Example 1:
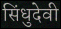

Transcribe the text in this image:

सिंधुदेवी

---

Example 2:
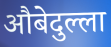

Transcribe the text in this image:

औबेदुल्ला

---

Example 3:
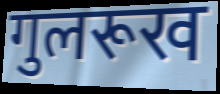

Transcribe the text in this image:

गुलरूख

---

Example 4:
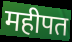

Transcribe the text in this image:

महीपत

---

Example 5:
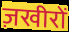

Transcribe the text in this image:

ज़खीरों